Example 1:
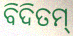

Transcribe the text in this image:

ବିଦିତମ୍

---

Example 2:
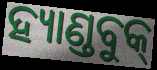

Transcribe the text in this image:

ହ୍ୟାଣ୍ଡବୁକ୍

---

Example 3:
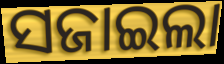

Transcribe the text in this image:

ସଜାଇଲା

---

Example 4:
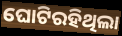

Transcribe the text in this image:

ଘୋଟିରହିଥିଲା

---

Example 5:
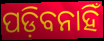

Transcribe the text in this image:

ପଡ଼ିବନାହିଁ